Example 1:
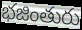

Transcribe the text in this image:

భజింతురు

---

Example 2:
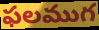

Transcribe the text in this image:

ఫలముగ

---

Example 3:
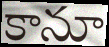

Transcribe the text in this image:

కానూ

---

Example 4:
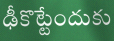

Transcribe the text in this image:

ఢీకొట్టేందుకు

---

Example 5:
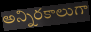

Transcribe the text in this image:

అన్నిరకాలుగా